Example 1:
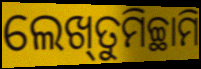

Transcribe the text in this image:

ଲେଖ୍‌ତୁମିଚ୍ଛାମି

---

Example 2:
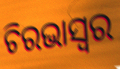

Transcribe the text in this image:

ଚିରଭାସ୍ଵର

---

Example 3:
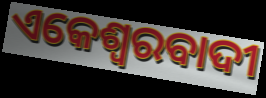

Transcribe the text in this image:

ଏକେଶ୍ଵରବାଦୀ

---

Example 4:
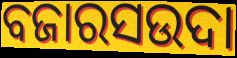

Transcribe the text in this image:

ବଜାରସଉଦା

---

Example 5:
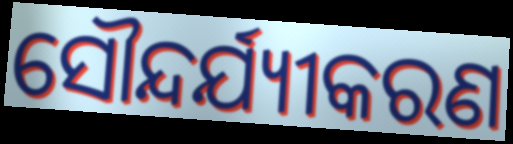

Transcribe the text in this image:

ସୌନ୍ଦର୍ଯ୍ୟୀକରଣ